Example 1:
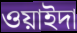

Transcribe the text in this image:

ওয়াইদা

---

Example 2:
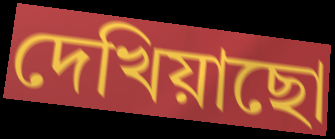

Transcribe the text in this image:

দেখিয়াছো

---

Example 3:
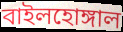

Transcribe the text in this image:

বাইলহোঙ্গাল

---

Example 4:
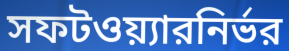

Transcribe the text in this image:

সফটওয়্যারনির্ভর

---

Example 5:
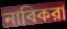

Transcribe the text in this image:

নাবিকরা